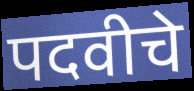
पदवीचे